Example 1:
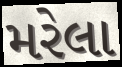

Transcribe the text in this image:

મરેલા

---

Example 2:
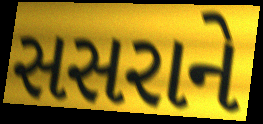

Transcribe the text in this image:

સસરાને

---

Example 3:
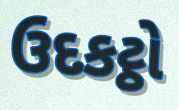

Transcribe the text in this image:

ઉદકટ્ઠો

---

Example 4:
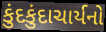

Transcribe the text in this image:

કુંદકુંદાચાર્યનો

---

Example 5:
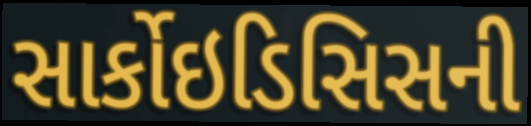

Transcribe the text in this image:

સાર્કોઇડિસિસની